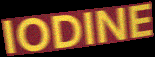
IODINE